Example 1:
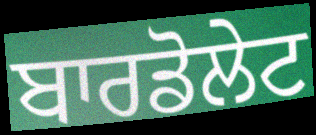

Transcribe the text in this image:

ਬਾਰਡੋਲੇਟ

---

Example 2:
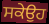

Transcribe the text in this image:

ਸਕੇਉਹ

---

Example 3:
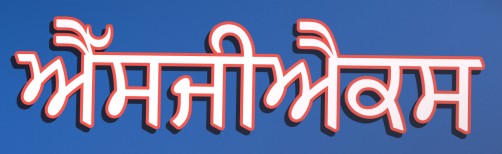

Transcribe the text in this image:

ਐੱਸਜੀਐਕਸ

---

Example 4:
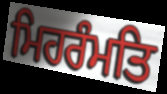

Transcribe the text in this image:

ਮਿਹਰੰਮਤਿ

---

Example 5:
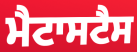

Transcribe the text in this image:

ਮੈਟਾਸਟੈਸ